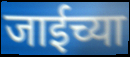
जाईच्या